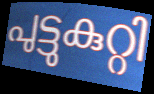
പുട്ടുകുറ്റി